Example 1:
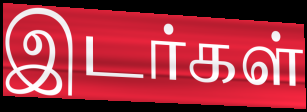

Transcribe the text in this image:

இடர்கள்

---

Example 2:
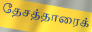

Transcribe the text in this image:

தேசத்தாரைக்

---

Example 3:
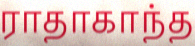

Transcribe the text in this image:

ராதாகாந்த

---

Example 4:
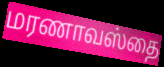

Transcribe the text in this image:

மரணாவஸ்தை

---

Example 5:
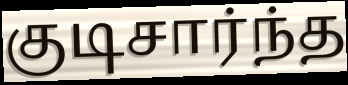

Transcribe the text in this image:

குடிசார்ந்த